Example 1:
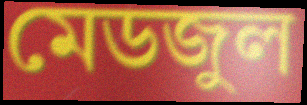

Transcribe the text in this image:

মেডজুল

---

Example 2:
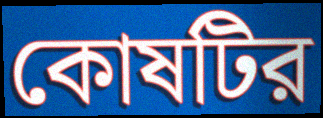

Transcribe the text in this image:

কোষটির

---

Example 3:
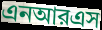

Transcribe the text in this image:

এনআরএস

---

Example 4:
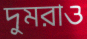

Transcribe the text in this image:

দুমরাও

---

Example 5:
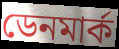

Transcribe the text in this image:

ডেনমার্ক